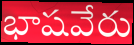
భాషవేరు